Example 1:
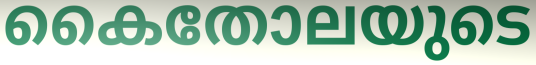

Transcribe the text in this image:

കൈതോലയുടെ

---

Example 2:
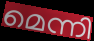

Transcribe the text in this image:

മെന്നി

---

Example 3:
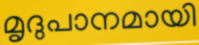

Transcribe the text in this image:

മൃദുപാനമായി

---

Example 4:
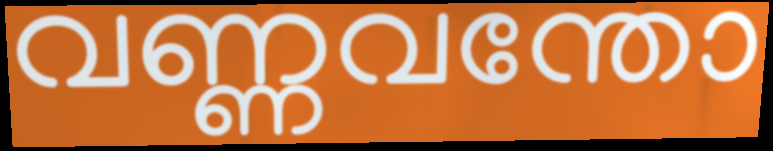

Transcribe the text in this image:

വണ്ണവന്തോ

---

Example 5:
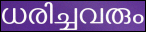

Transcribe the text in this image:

ധരിച്ചവരും